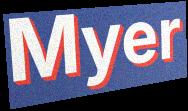
Myer